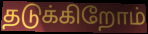
தடுக்கிறோம்